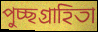
পুচ্ছগ্রাহিতা